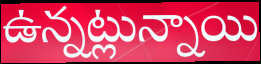
ఉన్నట్లున్నాయి